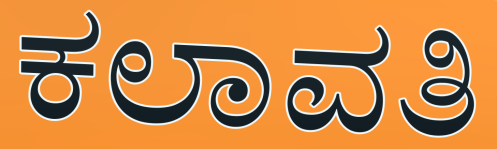
ಕಲಾವತಿ